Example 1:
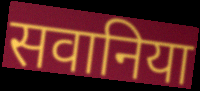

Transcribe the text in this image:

सवानिया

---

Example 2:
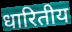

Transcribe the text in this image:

धारितीय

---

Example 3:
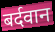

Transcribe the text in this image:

बर्दवान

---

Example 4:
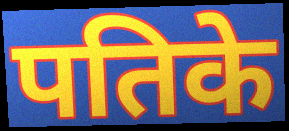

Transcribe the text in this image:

पतिके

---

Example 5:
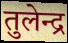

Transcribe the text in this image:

तुलेन्द्र